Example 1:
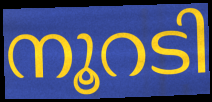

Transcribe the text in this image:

നൂറടി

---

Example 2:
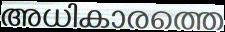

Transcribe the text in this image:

അധികാരത്തെ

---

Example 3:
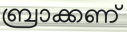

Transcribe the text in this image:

ബ്രാക്കണ്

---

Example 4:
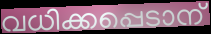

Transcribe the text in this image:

വധിക്കപ്പെടാന്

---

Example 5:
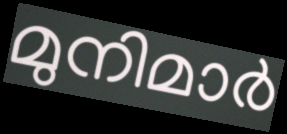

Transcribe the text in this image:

മുനിമാർ